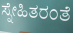
ಸ್ನೇಹಿತರಂತೆ